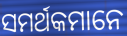
ସମର୍ଥକମାନେ